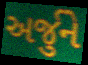
અર્જુને